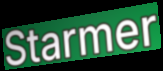
Starmer